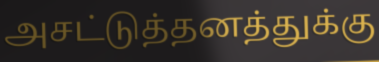
அசட்டுத்தனத்துக்கு